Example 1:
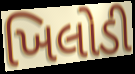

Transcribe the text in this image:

ખિલોડી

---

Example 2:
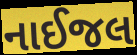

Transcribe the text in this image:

નાઈજલ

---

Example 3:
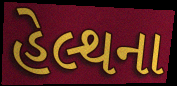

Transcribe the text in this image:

હેલ્થના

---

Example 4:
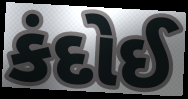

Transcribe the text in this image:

કંદોઈ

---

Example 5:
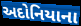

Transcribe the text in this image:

અદોનિયાના